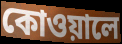
কোওয়ালে